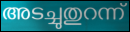
അടച്ചുതുറന്ന്